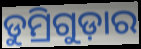
ଡୁମ୍ରିଗୁଡ଼ାର